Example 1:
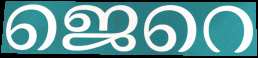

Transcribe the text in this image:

ജെറെ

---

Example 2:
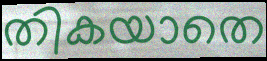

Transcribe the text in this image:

തികയാതെ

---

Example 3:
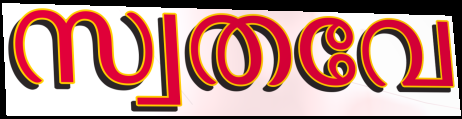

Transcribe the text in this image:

സ്വതവേ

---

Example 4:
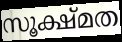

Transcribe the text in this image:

സൂക്ഷ്മത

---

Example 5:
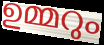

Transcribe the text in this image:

ഉമ്മറും